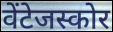
वेंटेजस्कोर